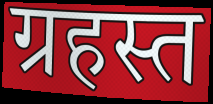
ग्रहस्त